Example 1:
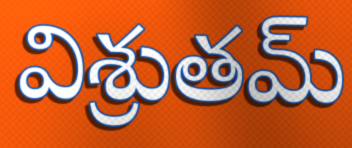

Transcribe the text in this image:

విశ్రుతమ్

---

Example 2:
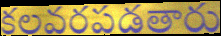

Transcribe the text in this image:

కలవరపడతారు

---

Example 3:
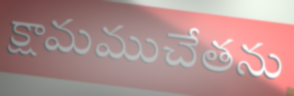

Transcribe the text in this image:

క్షామముచేతను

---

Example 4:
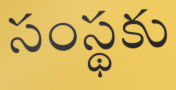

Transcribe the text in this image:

సంస్థకు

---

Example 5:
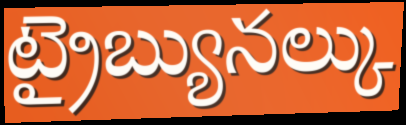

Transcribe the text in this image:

ట్రైబ్యునల్కు